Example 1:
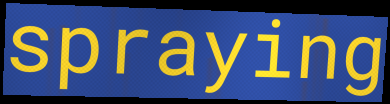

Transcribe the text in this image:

spraying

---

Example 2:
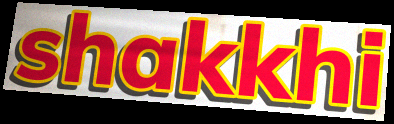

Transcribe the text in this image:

shakkhi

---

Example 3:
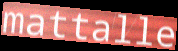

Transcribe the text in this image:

mattalle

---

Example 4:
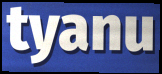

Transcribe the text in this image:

tyanu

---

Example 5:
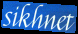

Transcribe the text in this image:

sikhnet